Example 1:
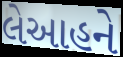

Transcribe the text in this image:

લેઆહને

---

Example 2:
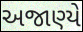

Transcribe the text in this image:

અજાણ્યે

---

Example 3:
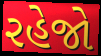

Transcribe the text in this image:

રહેજો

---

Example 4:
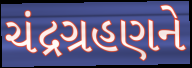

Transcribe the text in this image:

ચંદ્રગ્રહણને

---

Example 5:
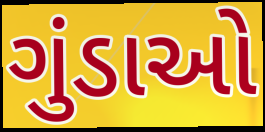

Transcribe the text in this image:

ગુંડાઓ